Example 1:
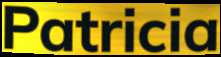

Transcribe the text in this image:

Patricia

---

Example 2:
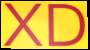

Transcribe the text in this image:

XD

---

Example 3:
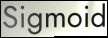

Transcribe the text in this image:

Sigmoid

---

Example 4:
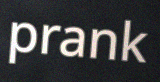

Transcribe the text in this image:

prank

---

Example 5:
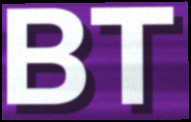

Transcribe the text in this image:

BT